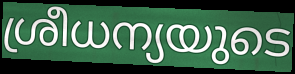
ശ്രീധന്യയുടെ